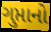
ગુપ્તાનો